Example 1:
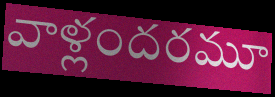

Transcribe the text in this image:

వాళ్లందరమూ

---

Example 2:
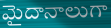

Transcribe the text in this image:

మైదానాలుగా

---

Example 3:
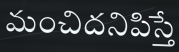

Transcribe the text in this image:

మంచిదనిపిస్తే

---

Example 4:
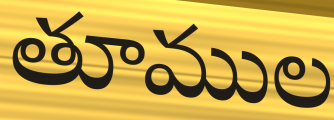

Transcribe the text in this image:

తూముల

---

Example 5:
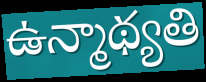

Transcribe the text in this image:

ఉన్మాథ్యతి